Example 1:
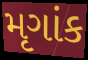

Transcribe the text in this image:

મૃગાંક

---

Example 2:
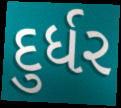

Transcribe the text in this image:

દુર્ધર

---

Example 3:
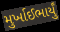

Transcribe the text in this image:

મુર્ખાઈભાર્યું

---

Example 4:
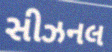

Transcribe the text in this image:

સીઝનલ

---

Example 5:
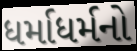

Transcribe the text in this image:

ધર્માધર્મનો